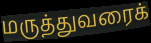
மருத்துவரைக்